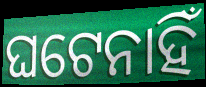
ଘଟେନାହିଁ